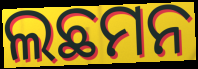
ଲଛମନ